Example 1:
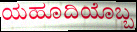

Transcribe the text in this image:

ಯಹೂದಿಯೊಬ್ಬ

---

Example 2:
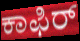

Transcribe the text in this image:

ಕಾಫಿರ್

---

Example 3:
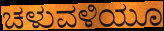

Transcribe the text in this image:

ಚಳುವಳಿಯೂ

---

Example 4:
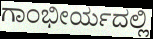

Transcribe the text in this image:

ಗಾಂಭೀರ್ಯದಲ್ಲಿ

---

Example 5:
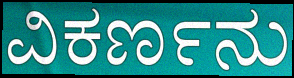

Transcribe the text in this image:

ವಿಕರ್ಣನು